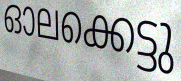
ഓലക്കെട്ടു